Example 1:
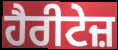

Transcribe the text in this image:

ਹੈਰੀਟੇਜ਼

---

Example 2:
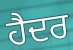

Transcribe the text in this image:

ਹੈਦਰ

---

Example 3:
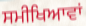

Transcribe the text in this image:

ਸਮੀਖਿਆਵਾਂ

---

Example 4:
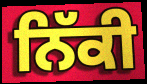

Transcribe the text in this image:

ਨਿੱਕੀ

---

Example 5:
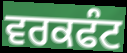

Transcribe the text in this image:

ਵਰਕਫੰਟ